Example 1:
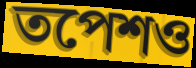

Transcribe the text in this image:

তপেশও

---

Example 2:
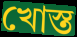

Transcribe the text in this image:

খোস্ত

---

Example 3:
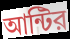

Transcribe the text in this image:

আন্টির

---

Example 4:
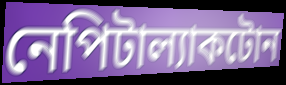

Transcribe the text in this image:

নেপিটাল্যাকটোন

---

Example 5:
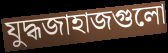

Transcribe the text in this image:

যুদ্ধজাহাজগুলো